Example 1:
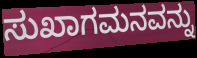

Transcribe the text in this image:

ಸುಖಾಗಮನವನ್ನು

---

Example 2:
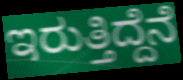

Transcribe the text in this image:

ಇರುತ್ತಿದ್ದೆನೆ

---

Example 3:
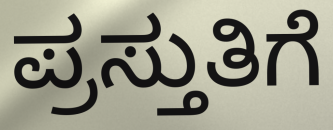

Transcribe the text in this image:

ಪ್ರಸ್ತುತಿಗೆ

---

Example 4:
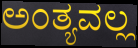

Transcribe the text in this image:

ಅಂತ್ಯವಲ್ಲ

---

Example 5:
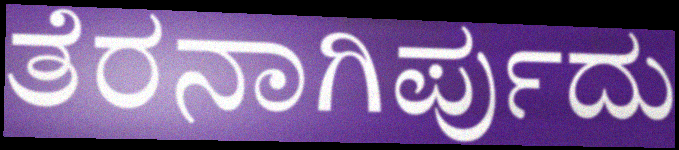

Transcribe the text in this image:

ತೆರನಾಗಿರ್ಪುದು